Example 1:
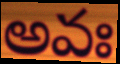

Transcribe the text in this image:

అవః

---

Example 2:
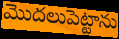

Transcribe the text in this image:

మొదలుపెట్టాను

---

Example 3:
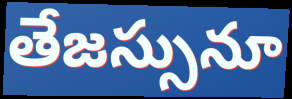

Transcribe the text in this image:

తేజస్సునూ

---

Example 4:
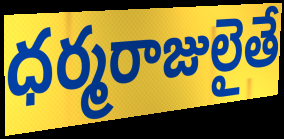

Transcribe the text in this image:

ధర్మరాజులైతే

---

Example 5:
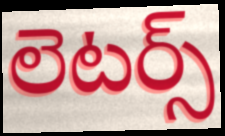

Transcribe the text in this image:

లెటర్స్